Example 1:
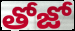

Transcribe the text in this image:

తోజో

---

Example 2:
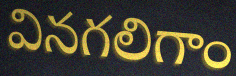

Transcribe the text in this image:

వినగలిగాం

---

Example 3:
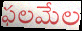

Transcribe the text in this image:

ఫలమేల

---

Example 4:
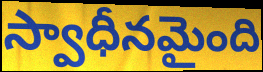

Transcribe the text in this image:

స్వాధీనమైంది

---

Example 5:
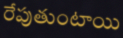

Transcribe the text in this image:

రేపుతుంటాయి